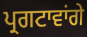
ਪ੍ਰਗਟਾਵਾਂਗੇ